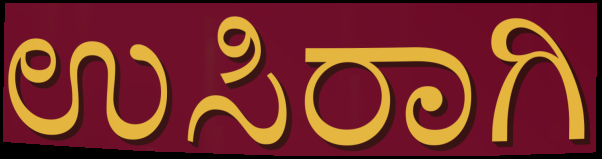
ಉಸಿರಾಗಿ